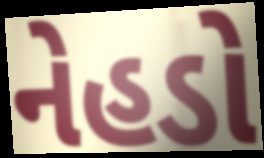
નેહડો